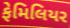
ફેમિલિયર